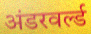
अंडरवर्ल्‍ड